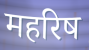
महरिष